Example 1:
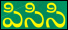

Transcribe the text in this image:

పిసిసి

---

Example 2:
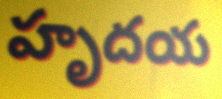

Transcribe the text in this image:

హృదయ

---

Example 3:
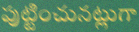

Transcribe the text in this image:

పుట్టించునట్లుగా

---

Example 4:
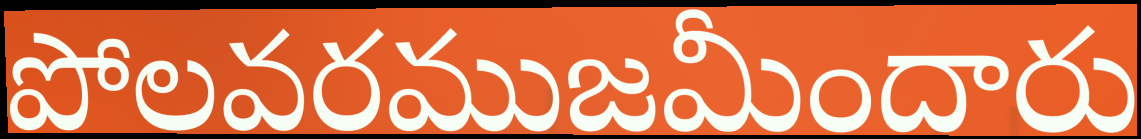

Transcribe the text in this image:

పోలవరముజమీందారు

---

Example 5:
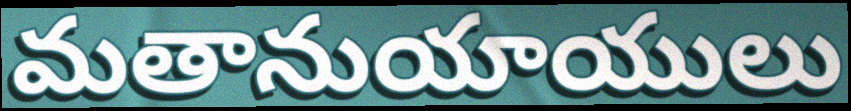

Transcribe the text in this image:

మతానుయాయులు